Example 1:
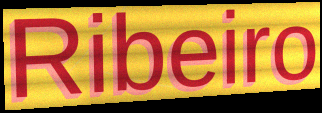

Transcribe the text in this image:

Ribeiro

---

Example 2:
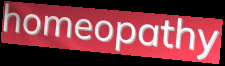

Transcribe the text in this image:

homeopathy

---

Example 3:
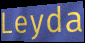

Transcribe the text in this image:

Leyda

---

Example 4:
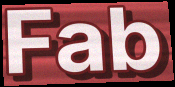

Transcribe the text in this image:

Fab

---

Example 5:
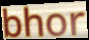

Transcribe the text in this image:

bhor